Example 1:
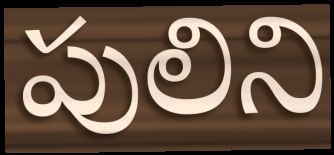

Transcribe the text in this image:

పులిని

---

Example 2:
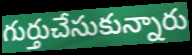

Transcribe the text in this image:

గుర్తుచేసుకున్నారు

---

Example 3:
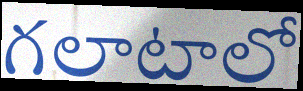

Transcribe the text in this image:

గలాటాలో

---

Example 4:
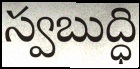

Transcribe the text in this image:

స్వబుద్ధి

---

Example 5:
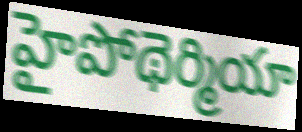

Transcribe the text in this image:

హైపోథెర్మియా